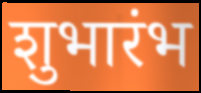
शुभारंभ